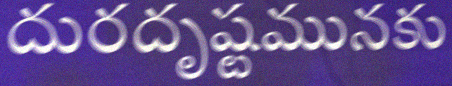
దురదృష్టమునకు